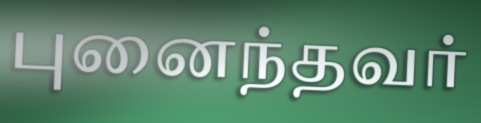
புனைந்தவர்